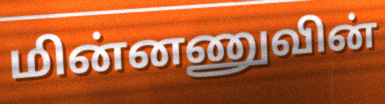
மின்னணுவின்